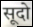
सूदो